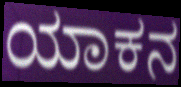
ಯಾಕನ